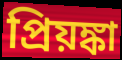
প্রিয়ঙ্কা